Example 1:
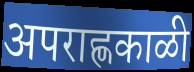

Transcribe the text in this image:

अपराह्णकाळी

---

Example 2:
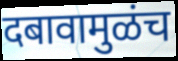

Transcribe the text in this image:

दबावामुळंच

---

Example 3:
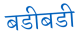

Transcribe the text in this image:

बडीबडी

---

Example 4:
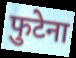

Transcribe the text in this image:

फुटेना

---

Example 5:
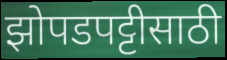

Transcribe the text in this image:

झोपडपट्टीसाठी